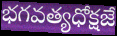
భగవత్యధోక్షజే